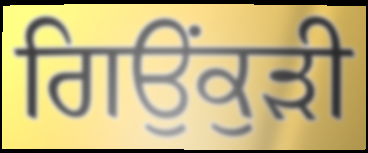
ਗਿਉਂਕੁੜੀ